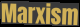
Marxism